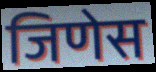
जिणेस